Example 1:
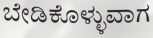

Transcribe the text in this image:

ಬೇಡಿಕೊಳ್ಳುವಾಗ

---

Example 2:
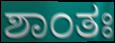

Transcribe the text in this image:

ಶಾಂತಃ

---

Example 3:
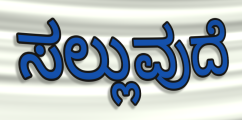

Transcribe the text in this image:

ಸಲ್ಲುವುದೆ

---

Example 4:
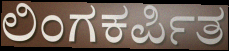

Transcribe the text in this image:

ಲಿಂಗಕರ್ಪಿತ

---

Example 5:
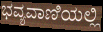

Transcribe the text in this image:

ಭವ್ಯವಾಣಿಯಲ್ಲಿ